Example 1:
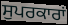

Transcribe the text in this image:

ਸੁਪਰਕਾਰਾਂ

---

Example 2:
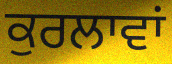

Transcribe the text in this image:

ਕੁਰਲਾਵਾਂ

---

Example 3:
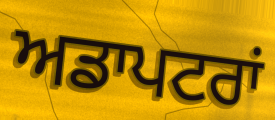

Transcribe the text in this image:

ਅਡਾਪਟਰਾਂ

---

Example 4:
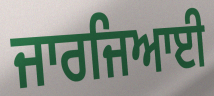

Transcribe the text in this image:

ਜਾਰਜਿਆਈ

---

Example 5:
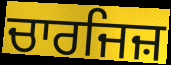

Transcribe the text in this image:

ਚਾਰਜਿਜ਼